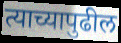
त्याच्यापुढील